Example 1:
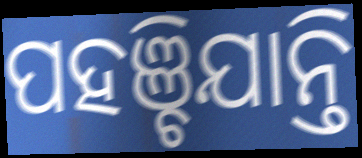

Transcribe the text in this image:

ପହଞ୍ଚିଯାନ୍ତି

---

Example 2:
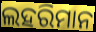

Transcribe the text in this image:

ଲହରିମାନ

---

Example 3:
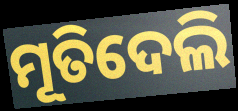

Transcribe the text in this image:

ମୂତିଦେଲି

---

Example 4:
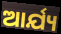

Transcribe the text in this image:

ଆର୍ଯ୍ୟ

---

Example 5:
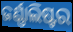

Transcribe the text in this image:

ଜର୍ଣ୍ଣାଲିଷ୍ଟର